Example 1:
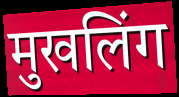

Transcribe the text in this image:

मुखलिंग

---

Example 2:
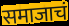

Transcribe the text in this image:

समाजाचं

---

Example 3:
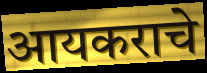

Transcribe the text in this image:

आयकराचे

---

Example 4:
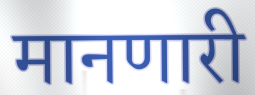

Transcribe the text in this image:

मानणारी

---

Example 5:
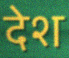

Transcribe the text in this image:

देश